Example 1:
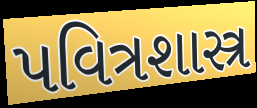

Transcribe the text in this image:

પવિત્રશાસ્ત્ર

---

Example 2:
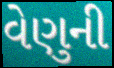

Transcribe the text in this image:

વેણુની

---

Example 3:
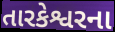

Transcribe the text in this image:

તારકેશ્વરના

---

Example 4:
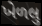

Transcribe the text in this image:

ખેળલુ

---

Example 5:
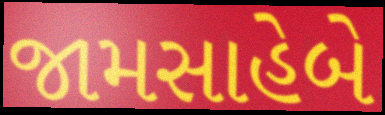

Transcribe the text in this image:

જામસાહેબે